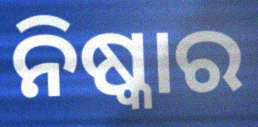
ନିଷ୍କାର